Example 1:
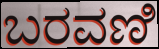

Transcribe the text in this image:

ಬರವಣಿ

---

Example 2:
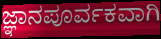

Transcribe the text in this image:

ಜ್ಞಾನಪೂರ್ವಕವಾಗಿ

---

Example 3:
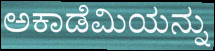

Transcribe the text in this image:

ಅಕಾಡೆಮಿಯನ್ನು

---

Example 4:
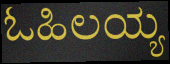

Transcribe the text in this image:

ಓಹಿಲಯ್ಯ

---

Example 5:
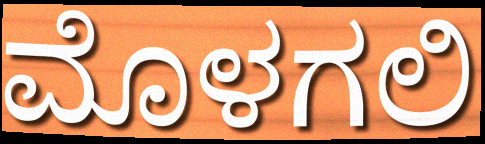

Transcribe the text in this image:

ಮೊಳಗಲಿ